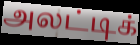
அலட்டிக்